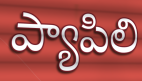
ప్యాపిలి